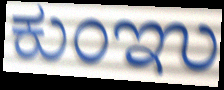
ಕುಂಞು